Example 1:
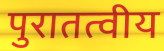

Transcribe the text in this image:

पुरातत्वीय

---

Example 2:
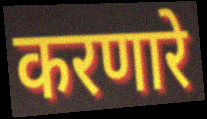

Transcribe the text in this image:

करणारे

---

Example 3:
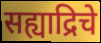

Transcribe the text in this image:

सह्याद्रिचे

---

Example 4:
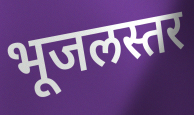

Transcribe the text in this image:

भूजलस्तर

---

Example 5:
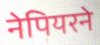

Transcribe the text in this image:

नेपियरने